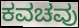
ಕವಚವು